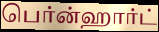
பெர்ன்ஹார்ட்